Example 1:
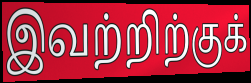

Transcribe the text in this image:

இவற்றிற்குக்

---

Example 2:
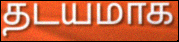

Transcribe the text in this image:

தடயமாக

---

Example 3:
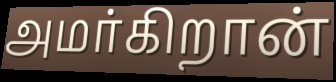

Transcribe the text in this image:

அமர்கிறான்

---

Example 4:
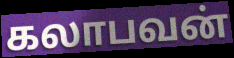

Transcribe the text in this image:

கலாபவன்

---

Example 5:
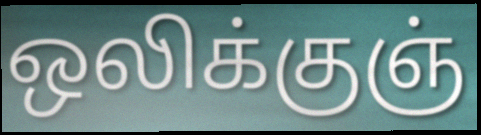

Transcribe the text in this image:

ஒலிக்குஞ்